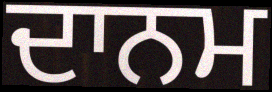
ਦਾਨਮ